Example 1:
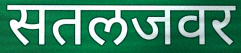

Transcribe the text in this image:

सतलजवर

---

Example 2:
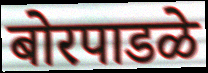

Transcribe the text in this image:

बोरपाडळे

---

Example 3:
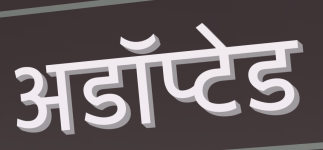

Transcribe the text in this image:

अडॉप्टेड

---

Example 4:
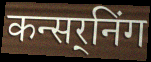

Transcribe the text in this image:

कन्सर्निंग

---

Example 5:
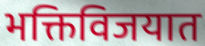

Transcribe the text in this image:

भक्तिविजयात